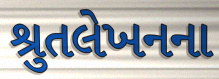
શ્રુતલેખનના